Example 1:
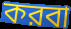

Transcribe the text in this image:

করবা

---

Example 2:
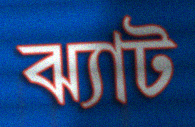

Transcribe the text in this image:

ঝ্যাট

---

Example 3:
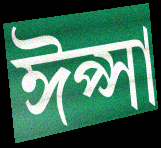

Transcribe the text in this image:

ঈপ্সা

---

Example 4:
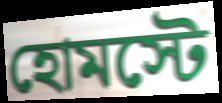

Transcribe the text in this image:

হোমস্টে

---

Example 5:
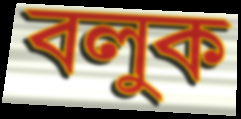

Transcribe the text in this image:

বলুক